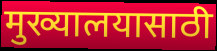
मुख्यालयासाठी